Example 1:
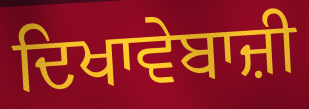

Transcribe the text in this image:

ਦਿਖਾਵੇਬਾਜ਼ੀ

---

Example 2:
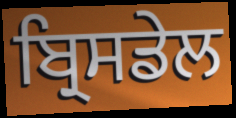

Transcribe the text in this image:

ਬ੍ਰਿਸਡੇਲ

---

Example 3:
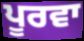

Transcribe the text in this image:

ਪੂਰਵਾ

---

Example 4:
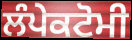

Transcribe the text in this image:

ਲੰਪੇਕਟੋਮੀ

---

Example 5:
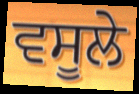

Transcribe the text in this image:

ਵਸੂਲੇ